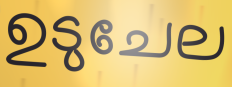
ഉടുചേല